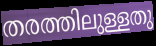
തരത്തിലുള്ളതു